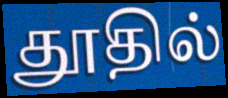
தூதில்